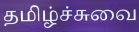
தமிழ்ச்சுவை